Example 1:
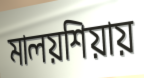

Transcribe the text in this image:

মালয়শিয়ায়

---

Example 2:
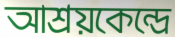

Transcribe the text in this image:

আশ্রয়কেন্দ্রে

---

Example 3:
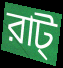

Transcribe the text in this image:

রাট্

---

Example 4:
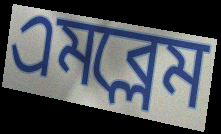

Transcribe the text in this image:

এমব্লেম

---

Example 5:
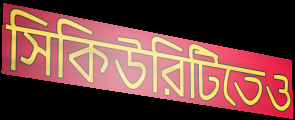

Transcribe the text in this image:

সিকিউরিটিতেও